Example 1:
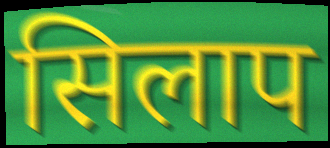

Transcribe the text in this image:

सिलाप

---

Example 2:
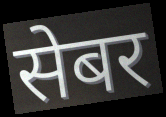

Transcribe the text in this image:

सेबर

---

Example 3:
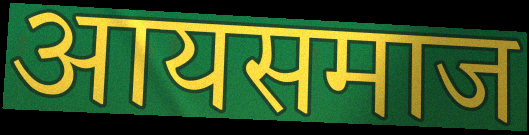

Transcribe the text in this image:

आयसमाज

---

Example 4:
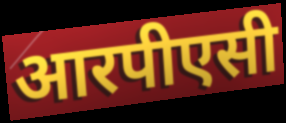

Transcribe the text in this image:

आरपीएसी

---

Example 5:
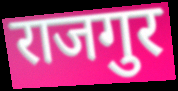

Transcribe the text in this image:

राजगुर